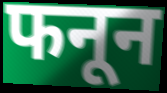
फनून